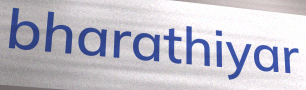
bharathiyar